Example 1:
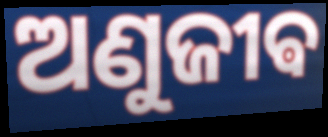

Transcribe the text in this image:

ଅଣୁଜୀଵ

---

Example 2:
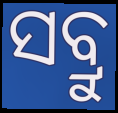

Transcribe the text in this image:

ସବ୍ରୁ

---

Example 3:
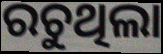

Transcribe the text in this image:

ରଚୁଥିଲା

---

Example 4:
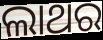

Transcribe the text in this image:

ଲାଥର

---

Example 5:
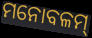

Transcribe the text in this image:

ମନୋବଳମ୍